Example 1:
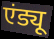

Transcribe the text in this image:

एंड्यू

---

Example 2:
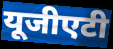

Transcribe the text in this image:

यूजीएटी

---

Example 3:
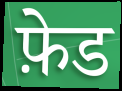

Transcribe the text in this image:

फ़ेड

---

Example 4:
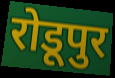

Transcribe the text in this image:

रोडूपुर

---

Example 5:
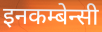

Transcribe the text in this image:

इनकम्बेन्सी